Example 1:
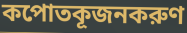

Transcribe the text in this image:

কপোতকূজনকরুণ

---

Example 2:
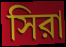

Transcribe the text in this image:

সিরা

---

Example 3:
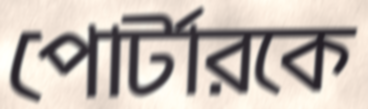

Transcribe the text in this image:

পোর্টারকে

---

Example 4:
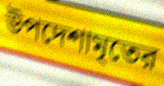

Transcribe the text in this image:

উপদেশামৃতের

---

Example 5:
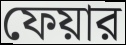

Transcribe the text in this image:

ফেয়ার